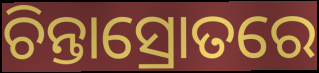
ଚିନ୍ତାସ୍ରୋତରେ